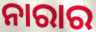
ନାରାର